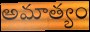
అమాత్యం